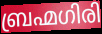
ബ്രഹ്മഗിരി